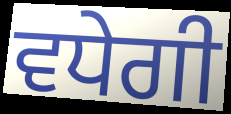
ਵਧੇਗੀ